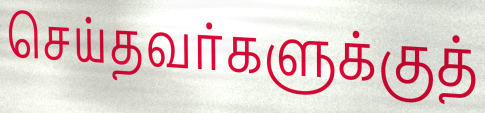
செய்தவர்களுக்குத்